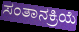
ಸಂತಾನಕ್ರಿಯೆ